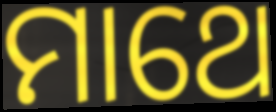
ମାଥେ